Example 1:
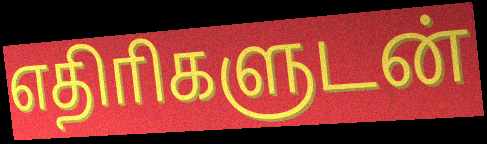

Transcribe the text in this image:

எதிரிகளுடன்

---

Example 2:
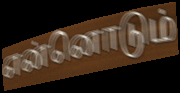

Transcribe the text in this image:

என்னொடும்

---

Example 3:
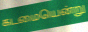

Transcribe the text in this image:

கடமையென்று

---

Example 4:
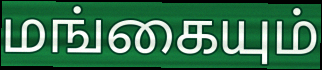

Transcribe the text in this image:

மங்கையும்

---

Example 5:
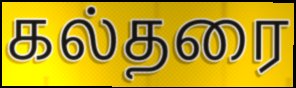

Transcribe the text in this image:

கல்தரை